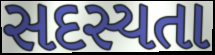
સદસ્યતા